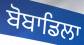
ਬੋਬਾਡਿਲਾ